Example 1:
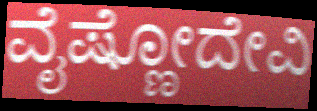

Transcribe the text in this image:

ವೈಷ್ಣೋದೇವಿ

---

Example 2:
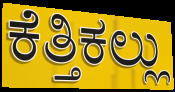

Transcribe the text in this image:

ಕೆತ್ತಿಕಲ್ಲು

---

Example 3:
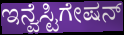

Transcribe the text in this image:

ಇನ್ವೆಸ್ಟಿಗೇಷನ್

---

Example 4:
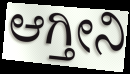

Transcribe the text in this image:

ಆಗ್ತೀನಿ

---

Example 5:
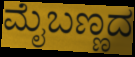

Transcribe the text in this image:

ಮೈಬಣ್ಣದ